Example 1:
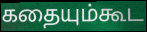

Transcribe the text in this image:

கதையும்கூட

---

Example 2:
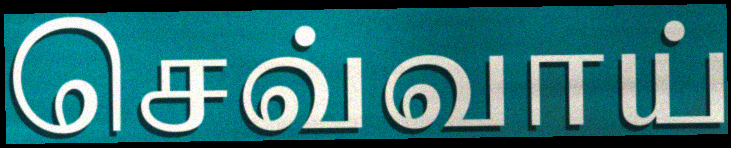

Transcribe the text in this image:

செவ்வாய்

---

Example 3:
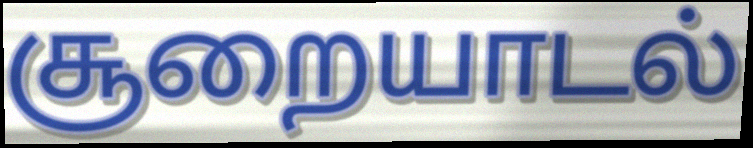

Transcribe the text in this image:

சூறையாடல்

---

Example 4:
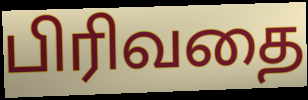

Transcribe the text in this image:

பிரிவதை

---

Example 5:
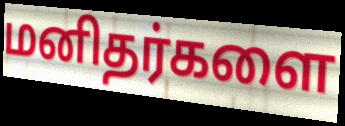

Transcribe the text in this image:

மனிதர்களை